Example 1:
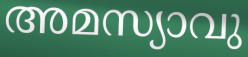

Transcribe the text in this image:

അമസ്യാവു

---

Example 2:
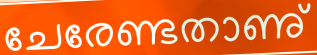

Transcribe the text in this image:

ചേരേണ്ടതാണു്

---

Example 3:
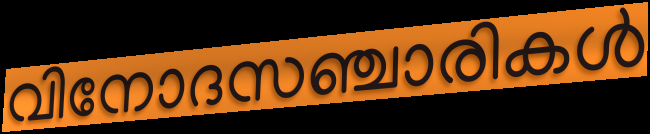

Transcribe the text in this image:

വിനോദസഞ്ചാരികൾ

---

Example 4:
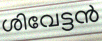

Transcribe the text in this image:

ശിവേട്ടൻ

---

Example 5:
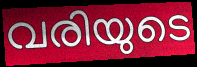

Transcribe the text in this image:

വരിയുടെ